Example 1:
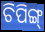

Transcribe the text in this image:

ଚିପିଙ୍ଗ୍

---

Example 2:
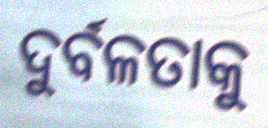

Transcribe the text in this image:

ଦୁର୍ବଳତାକୁ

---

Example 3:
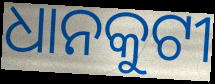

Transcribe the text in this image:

ଧାନକୁଟୀ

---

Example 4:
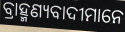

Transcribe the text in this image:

ବ୍ରାହ୍ମଣ୍ୟବାଦୀମାନେ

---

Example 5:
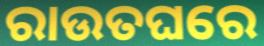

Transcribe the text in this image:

ରାଉତଘରେ